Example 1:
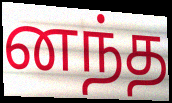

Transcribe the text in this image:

னந்த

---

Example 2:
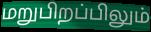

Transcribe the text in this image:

மறுபிறப்பிலும்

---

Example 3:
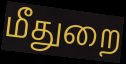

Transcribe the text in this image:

மீதுறை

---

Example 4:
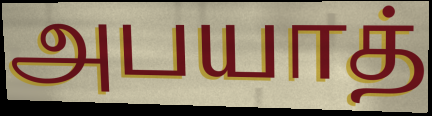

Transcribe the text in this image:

அபயாத்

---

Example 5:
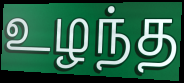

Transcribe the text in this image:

உழந்த